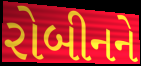
રોબીનને